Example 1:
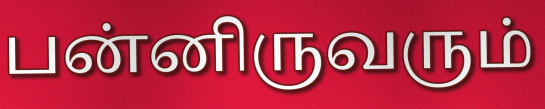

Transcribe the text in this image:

பன்னிருவரும்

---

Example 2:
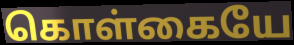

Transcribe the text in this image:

கொள்கையே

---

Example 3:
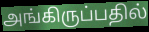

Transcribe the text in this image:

அங்கிருப்பதில்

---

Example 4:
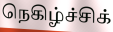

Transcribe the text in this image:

நெகிழ்ச்சிக்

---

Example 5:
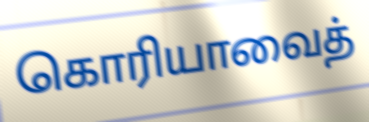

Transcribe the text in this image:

கொரியாவைத்